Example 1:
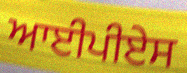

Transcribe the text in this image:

ਆਈਪੀਏਸ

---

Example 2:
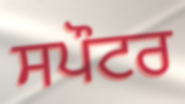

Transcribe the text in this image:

ਸਪੌਟਰ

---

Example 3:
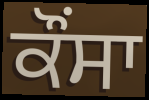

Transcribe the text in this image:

ਕੌਂਸਾ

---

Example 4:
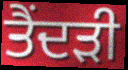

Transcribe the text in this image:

ਤੈਂਦੜੀ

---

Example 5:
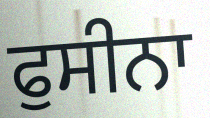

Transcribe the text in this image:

ਫੁਸੀਨਾ